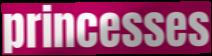
princesses